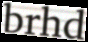
brhd